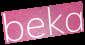
beka